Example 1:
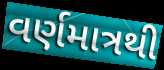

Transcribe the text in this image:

વર્ણમાત્રથી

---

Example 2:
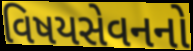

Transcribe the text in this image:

વિષયસેવનનો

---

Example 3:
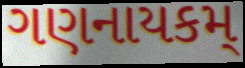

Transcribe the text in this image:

ગણનાયકમ્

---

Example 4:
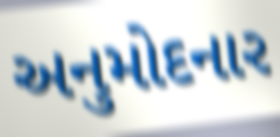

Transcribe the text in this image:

અનુમોદનાર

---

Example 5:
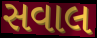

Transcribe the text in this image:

સવાલ